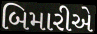
બિમારીએ